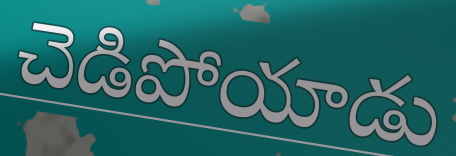
చెడిపోయాడు